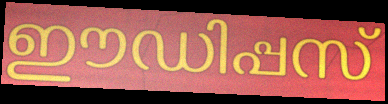
ഈഡിപ്പസ്